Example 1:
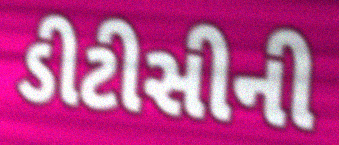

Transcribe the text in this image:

ડીટીસીની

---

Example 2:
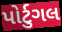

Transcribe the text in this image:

પોર્ટુગલ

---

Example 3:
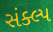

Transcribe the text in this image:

સંક્લ્પ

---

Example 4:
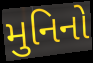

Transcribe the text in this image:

મુનિનો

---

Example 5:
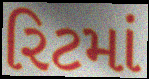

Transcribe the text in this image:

રિટમાં